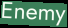
Enemy